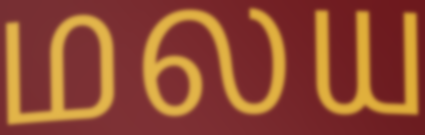
மலய